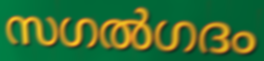
സഗൽഗദം